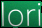
lori